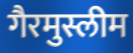
गैरमुस्लीम